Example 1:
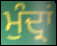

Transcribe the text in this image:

ਮੁੰਦ੍ਰਾਂ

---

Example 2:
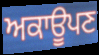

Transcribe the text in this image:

ਅਕਾਊਪਣ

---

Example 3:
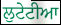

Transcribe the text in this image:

ਲੁਟੇਟੀਆ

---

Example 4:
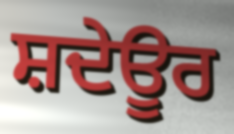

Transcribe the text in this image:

ਸ਼ਦੇਊਰ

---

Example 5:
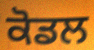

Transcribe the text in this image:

ਕੋਡਲ